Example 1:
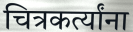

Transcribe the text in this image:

चित्रकर्त्यांना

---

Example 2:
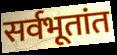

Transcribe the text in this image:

सर्वभूतांत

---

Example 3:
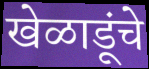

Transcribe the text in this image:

खेळाडूंचे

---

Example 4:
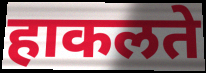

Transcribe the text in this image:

हाकलते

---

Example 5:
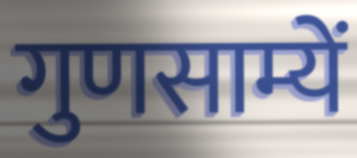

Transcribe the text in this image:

गुणसाम्यें